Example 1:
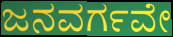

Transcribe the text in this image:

ಜನವರ್ಗವೇ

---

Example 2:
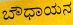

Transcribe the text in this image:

ಬೌಧಾಯನ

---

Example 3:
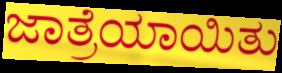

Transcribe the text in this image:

ಜಾತ್ರೆಯಾಯಿತು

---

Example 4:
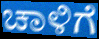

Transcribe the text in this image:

ಚಾಳಿಗೆ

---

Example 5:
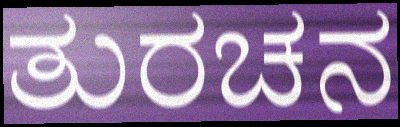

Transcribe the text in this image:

ತುರಚನ